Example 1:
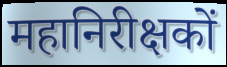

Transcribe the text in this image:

महानिरीक्षकों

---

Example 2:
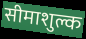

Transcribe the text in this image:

सीमाशुल्क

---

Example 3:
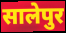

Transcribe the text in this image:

सालेपुर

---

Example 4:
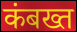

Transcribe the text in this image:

कंबख्त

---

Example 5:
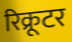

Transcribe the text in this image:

रिक्रूटर